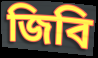
জিবি